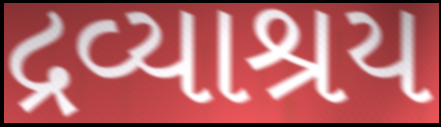
દ્રવ્યાશ્રય